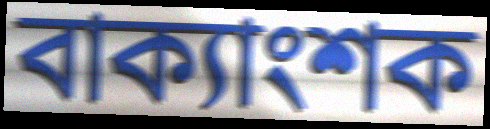
বাক্যাংশক